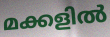
മക്കളിൽ